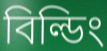
বিল্ডিং